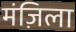
मंज़िला